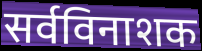
सर्वविनाशक